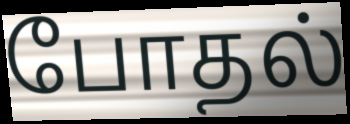
போதல்